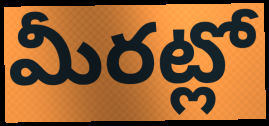
మీరట్లో